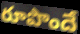
రూపొందే